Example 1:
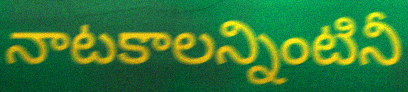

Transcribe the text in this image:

నాటకాలన్నింటినీ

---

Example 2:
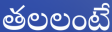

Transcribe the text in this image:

తలలంటే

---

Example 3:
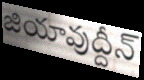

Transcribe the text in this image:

జియావుద్దీన్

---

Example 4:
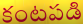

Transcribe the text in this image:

కంటపడి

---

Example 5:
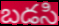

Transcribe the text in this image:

బడసి